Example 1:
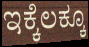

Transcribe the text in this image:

ಇಕ್ಕೆಲಕ್ಕೂ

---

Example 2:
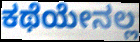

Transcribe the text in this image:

ಕಥೆಯೇನಲ್ಲ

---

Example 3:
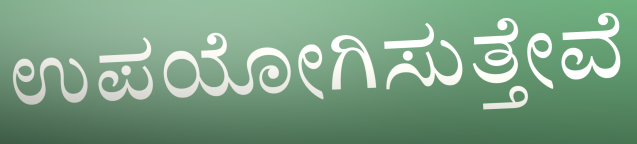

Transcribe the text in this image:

ಉಪಯೋಗಿಸುತ್ತೇವೆ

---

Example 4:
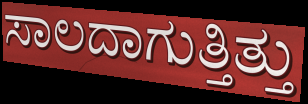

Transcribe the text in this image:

ಸಾಲದಾಗುತ್ತಿತ್ತು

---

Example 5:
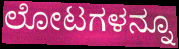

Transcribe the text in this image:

ಲೋಟಗಳನ್ನೂ